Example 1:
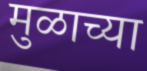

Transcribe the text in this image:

मुळाच्या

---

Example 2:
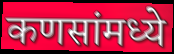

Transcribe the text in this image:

कणसांमध्ये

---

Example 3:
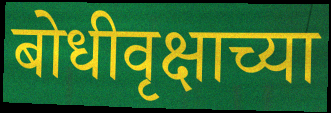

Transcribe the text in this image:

बोधीवृक्षाच्या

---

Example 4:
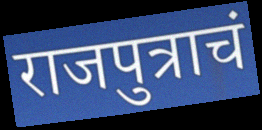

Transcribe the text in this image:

राजपुत्राचं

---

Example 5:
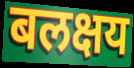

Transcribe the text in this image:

बलक्षय